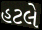
હટલે